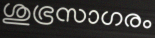
ശുഭ്രസാഗരം